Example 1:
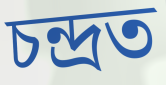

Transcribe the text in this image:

চন্দ্ৰত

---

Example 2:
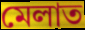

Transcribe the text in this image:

মেলাত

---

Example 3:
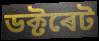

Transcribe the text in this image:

ডক্টৰেট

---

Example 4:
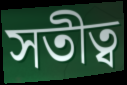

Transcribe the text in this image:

সতীত্ব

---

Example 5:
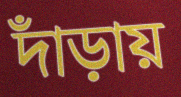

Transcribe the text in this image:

দাঁড়ায়